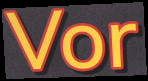
Vor